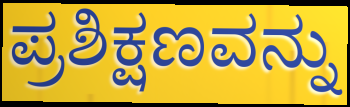
ಪ್ರಶಿಕ್ಷಣವನ್ನು